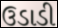
ઉડાડી